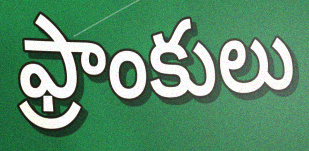
ఫ్రాంకులు